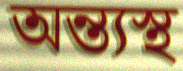
অন্ত্যস্থ